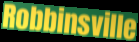
Robbinsville